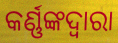
କର୍ଣ୍ଣଙ୍କଦ୍ୱାରା